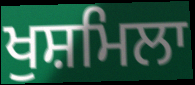
ਖੁਸ਼ਮਿਲਾ